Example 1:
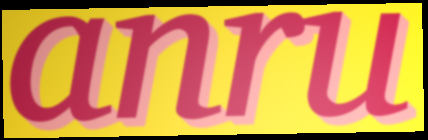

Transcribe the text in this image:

anru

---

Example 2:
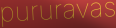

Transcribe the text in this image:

pururavas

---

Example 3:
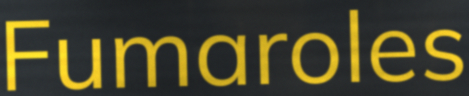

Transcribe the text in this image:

Fumaroles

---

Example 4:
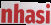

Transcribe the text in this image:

nhasi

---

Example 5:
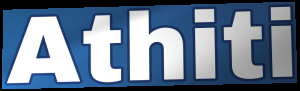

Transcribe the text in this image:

Athiti